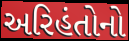
અરિહંતોનો